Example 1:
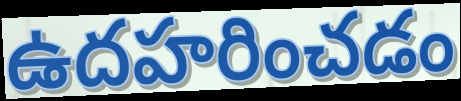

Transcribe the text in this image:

ఉదహరించడం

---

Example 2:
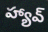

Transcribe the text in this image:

హ్యావ్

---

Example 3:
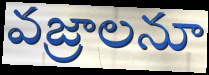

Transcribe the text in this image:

వజ్రాలనూ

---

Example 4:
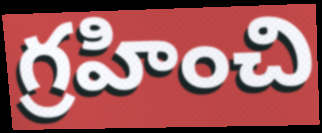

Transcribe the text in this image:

గ్రహించి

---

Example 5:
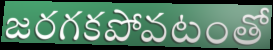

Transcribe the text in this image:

జరగకపోవటంతో